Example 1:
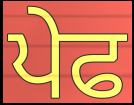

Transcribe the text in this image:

ਪੇਫ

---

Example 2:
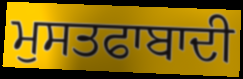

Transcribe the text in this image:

ਮੁਸਤਫਾਬਾਦੀ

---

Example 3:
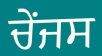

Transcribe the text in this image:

ਚੇਂਜਸ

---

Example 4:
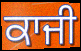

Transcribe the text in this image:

ਕਾਜੀ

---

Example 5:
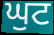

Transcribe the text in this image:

ਘੁਟ